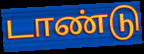
டாண்டு